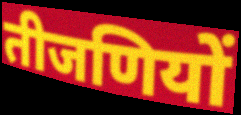
तीजणियों